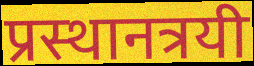
प्रस्थानत्रयी